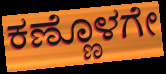
ಕಣ್ಣೊಳಗೇ